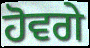
ਹੋਵਗੇ